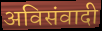
अविसंवादी